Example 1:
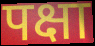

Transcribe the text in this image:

पक्षा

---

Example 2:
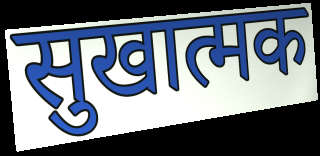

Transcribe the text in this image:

सुखात्मक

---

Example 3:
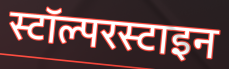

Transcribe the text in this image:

स्टॉल्परस्टाइन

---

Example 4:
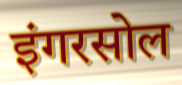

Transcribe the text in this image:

इंगरसोल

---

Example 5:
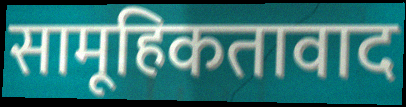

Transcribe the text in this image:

सामूहिकतावाद